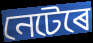
নেটেৰে